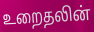
உறைதலின்